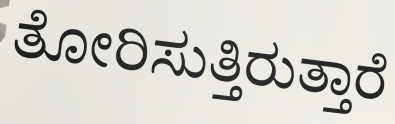
ತೋರಿಸುತ್ತಿರುತ್ತಾರೆ